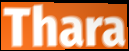
Thara